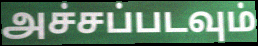
அச்சப்படவும்